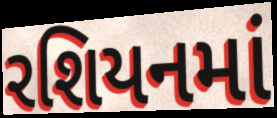
રશિયનમાં